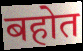
बहोत